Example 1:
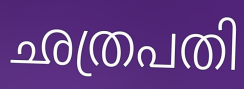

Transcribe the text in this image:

ഛത്രപതി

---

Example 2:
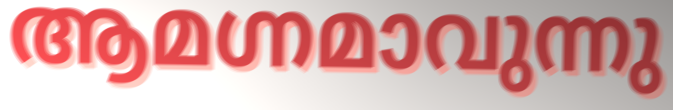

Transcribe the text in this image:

ആമഗ്നമാവുന്നു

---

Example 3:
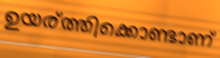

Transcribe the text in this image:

ഉയര്ത്തിക്കൊണ്ടാണ്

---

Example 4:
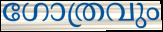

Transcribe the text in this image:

ഗോത്രവും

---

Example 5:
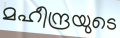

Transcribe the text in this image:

മഹീന്ദ്രയുടെ